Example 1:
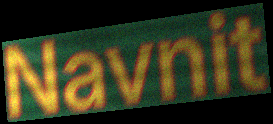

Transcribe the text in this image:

Navnit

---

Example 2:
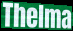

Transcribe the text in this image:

Thelma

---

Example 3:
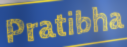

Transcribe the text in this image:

Pratibha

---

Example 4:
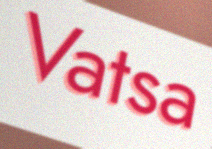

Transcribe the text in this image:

Vatsa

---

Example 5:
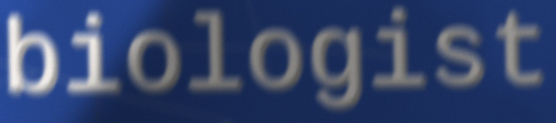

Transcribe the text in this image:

biologist